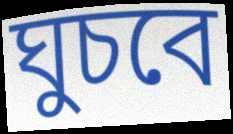
ঘুচবে